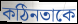
কঠিনতাকে